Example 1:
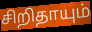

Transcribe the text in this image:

சிறிதாயும்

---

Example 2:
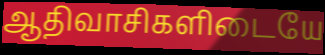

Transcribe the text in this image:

ஆதிவாசிகளிடையே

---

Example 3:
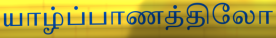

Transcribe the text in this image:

யாழ்ப்பாணத்திலோ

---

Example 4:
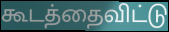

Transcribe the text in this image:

கூடத்தைவிட்டு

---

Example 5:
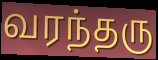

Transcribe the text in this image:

வரந்தரு